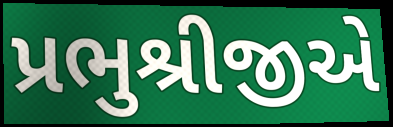
પ્રભુશ્રીજીએ